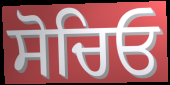
ਸੋਚਿਓ